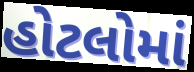
હોટલોમાં